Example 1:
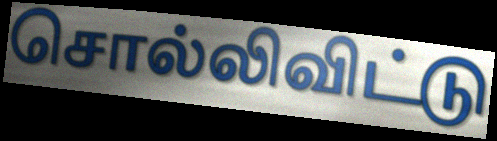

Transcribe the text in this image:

சொல்லிவிட்டு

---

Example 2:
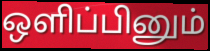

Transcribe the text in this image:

ஒளிப்பினும்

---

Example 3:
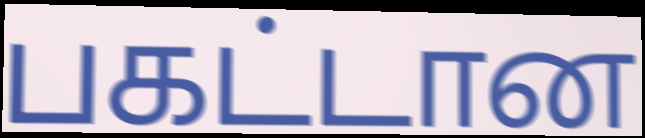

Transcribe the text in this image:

பகட்டான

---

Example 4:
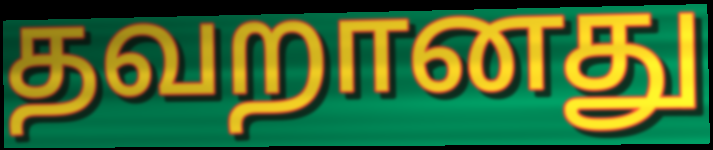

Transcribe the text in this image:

தவறானது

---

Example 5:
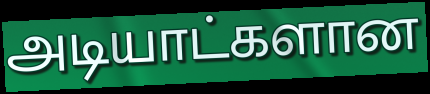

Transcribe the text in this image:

அடியாட்களான